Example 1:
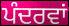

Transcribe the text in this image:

ਪੰਦਰਵਾਂ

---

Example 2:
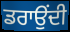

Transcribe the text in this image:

ਡਰਾਉਂਦੀ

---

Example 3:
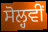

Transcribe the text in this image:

ਸੋਲ੍ਹਵੀਂ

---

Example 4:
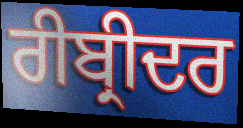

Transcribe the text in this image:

ਰੀਬ੍ਰੀਦਰ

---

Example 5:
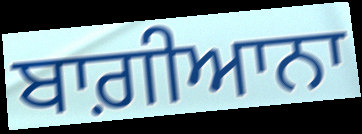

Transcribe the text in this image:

ਬਾਗ਼ੀਆਨਾ